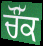
ਚੌੱਕ